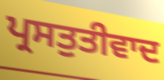
ਪ੍ਰਸਤੁਤੀਵਾਦ